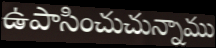
ఉపాసించుచున్నాము